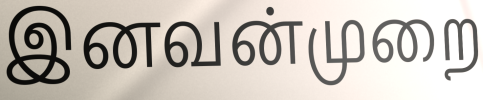
இனவன்முறை